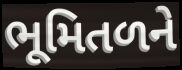
ભૂમિતળને